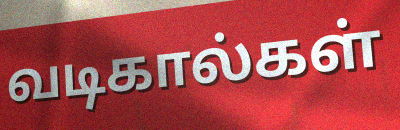
வடிகால்கள்